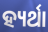
ହ୍ୟର୍ଥା